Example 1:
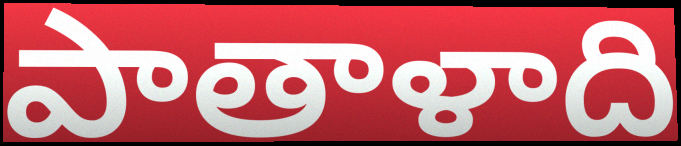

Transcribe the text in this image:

పాతాళాది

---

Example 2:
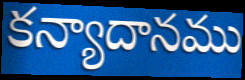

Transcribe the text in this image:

కన్యాదానము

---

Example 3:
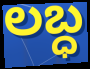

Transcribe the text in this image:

లబ్ధ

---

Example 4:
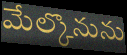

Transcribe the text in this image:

మేల్కొనును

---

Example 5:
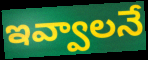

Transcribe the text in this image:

ఇవ్వాలనే